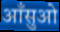
आँसुओ